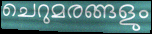
ചെറുമരങ്ങളും